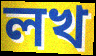
লখ